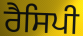
ਰੈਸਿਪੀ